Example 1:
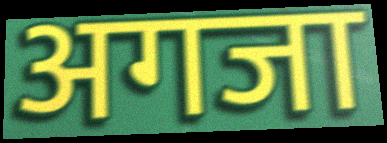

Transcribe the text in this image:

अगजा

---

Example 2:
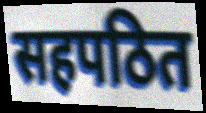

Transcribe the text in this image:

सहपठित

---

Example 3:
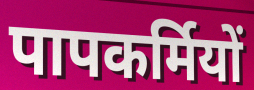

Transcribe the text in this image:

पापकर्मियों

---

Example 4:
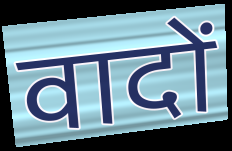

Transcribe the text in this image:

वादों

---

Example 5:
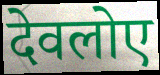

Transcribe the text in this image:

देवलोए